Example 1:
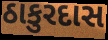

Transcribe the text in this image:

ઠાકુરદાસ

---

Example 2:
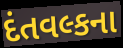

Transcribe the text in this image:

દંતવલ્કના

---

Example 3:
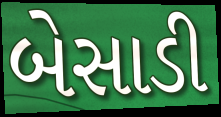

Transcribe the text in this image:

બેસાડી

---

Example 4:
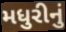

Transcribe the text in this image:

મધુરીનું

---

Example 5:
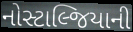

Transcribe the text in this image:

નોસ્ટાલ્જિયાની